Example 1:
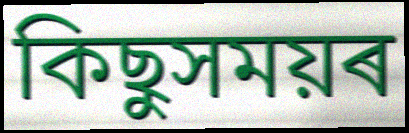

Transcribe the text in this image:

কিছুসময়ৰ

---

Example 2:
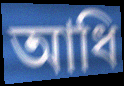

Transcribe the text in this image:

আধি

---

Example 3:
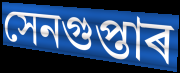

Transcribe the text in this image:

সেনগুপ্তাৰ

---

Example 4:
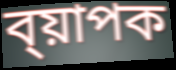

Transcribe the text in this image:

ব্য়াপক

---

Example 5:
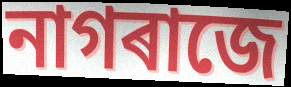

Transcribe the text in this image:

নাগৰাজে